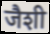
जैशी